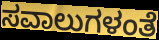
ಸವಾಲುಗಳಂತೆ